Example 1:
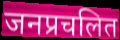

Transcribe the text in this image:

जनप्रचलित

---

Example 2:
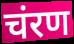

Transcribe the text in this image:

चंरण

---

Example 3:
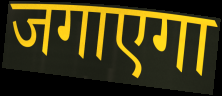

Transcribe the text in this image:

जगाएगा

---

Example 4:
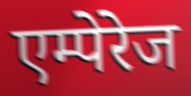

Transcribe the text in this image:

एम्पेरेज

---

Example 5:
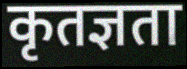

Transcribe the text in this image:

कृतज्ञता